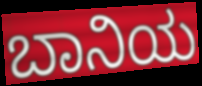
ಬಾನಿಯ